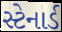
સ્ટેનાર્ડ